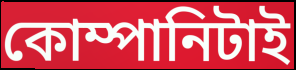
কোম্পানিটাই